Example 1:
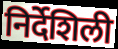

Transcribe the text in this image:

निर्देशिली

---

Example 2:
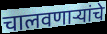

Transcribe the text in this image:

चालवणाऱ्यांचे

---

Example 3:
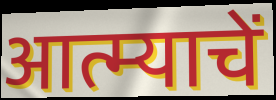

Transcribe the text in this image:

आत्म्याचें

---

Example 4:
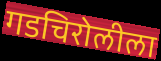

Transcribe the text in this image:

गडचिरोलीला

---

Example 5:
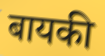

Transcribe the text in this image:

बायकी